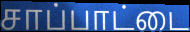
சாப்பாட்டை